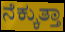
ನೆಕ್ಕುತ್ತಾ